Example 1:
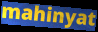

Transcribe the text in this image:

mahinyat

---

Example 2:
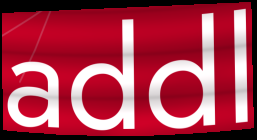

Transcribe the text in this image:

addl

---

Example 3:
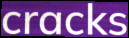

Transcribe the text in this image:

cracks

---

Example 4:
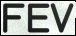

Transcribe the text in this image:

FEV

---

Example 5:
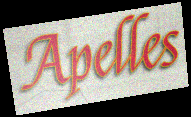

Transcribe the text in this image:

Apelles